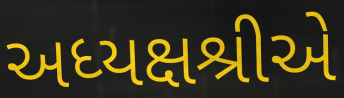
અધ્યક્ષશ્રીએ